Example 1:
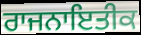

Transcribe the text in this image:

ਰਾਜਨਾਇਤੀਕ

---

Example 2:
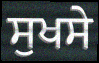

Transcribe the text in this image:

ਸੁਖਸੇ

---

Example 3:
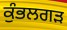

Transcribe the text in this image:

ਕੁੰਭਲਗੜ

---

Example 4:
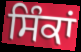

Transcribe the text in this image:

ਸਿੰਕਾਂ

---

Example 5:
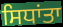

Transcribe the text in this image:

ਸਿਧਾਂਤਾ